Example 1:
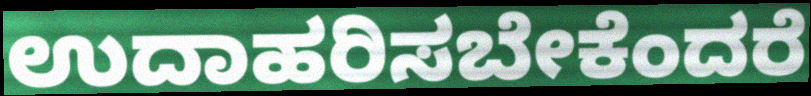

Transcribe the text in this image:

ಉದಾಹರಿಸಬೇಕೆಂದರೆ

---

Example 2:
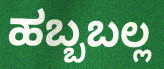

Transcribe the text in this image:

ಹಬ್ಬಬಲ್ಲ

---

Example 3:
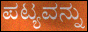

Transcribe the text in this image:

ಪಟ್ಯವನ್ನು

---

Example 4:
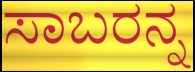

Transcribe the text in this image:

ಸಾಬರನ್ನ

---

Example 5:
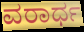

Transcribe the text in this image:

ವರಾರ್ಧ